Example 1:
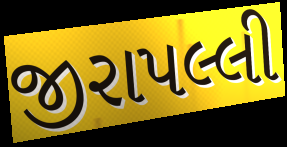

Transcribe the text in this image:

જીરાપલ્લી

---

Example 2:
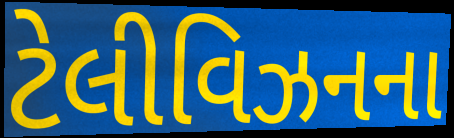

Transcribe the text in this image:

ટેલીવિઝનના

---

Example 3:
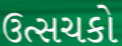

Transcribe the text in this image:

ઉત્સચકો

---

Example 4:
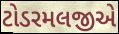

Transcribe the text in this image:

ટોડરમલજીએ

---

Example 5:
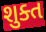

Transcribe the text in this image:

શુક્ત